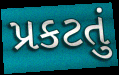
પ્રકટતું